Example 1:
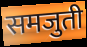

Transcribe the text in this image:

समजुती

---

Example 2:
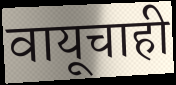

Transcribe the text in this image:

वायूचाही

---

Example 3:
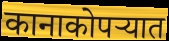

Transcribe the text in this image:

कानाकोपऱ्यात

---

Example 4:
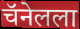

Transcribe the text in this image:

चॅनेलला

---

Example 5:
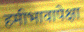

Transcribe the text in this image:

हमीभावापेक्षा